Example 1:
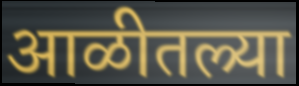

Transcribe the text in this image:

आळीतल्या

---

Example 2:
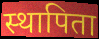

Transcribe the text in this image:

स्थापिता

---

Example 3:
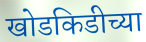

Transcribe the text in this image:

खोडकिडीच्या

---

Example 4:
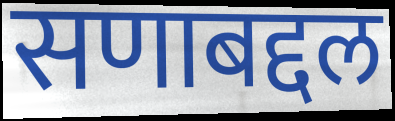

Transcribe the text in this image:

सणाबद्दल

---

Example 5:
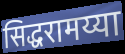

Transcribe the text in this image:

सिद्धरामय्या